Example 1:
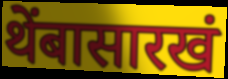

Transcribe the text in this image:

थेंबासारखं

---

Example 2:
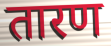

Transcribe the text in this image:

तारण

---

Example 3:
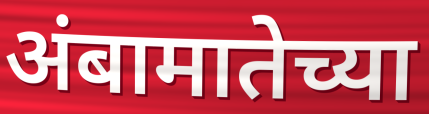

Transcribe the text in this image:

अंबामातेच्या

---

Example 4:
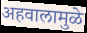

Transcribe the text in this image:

अहवालामुळे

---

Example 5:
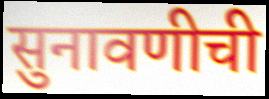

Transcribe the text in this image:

सुनावणीची